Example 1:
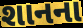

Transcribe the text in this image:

શાનના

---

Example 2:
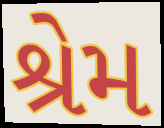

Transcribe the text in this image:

શ્રેમ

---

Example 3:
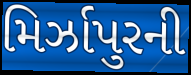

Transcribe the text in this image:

મિર્ઝાપુરની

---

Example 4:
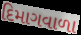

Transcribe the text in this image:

દિમાગવાળા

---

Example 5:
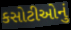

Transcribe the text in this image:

કસોટીઓનું